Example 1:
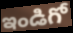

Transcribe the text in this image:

ఇండిగో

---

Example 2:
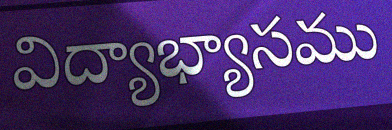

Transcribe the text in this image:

విద్యాభ్యాసము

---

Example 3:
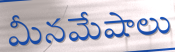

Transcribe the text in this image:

మీనమేషాలు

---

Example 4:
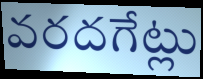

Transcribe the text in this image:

వరదగేట్లు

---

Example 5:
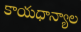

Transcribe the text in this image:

కాయధాన్యాల